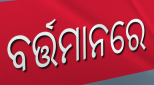
ବର୍ତ୍ତମାନରେ